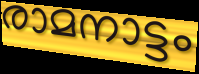
രാമനാട്ടം